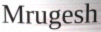
Mrugesh